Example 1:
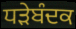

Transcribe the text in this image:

ਧੜੇਬੰਦਕ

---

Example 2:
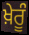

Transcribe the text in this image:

ਖ਼ੇਰੂੰ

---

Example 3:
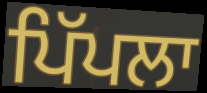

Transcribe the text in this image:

ਪਿੱਪਲਾ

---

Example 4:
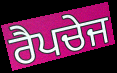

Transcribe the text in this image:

ਰੈਪਚੇਜ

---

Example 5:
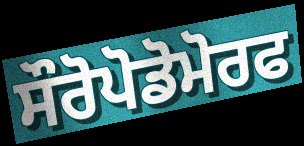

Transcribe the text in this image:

ਸੌਰੋਪੋਡੋਮੋਰਫ